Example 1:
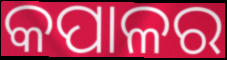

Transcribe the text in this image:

କପାଳର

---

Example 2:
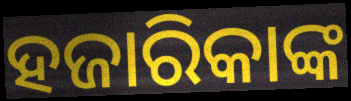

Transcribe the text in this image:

ହଜାରିକାଙ୍କ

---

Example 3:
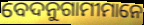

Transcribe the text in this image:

ବେଦନୁଗାମୀମାନେ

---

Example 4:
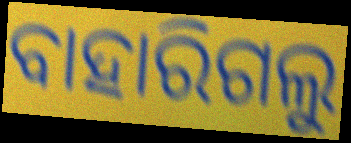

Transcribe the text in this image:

ବାହାରିଗଲୁ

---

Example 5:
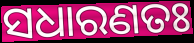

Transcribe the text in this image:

ସଧାରଣତଃ